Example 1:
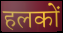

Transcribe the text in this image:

हलकों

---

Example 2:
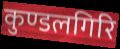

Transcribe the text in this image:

कुण्डलगिरि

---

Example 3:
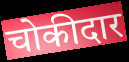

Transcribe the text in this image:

चोकीदार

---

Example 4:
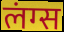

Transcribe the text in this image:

लंग्स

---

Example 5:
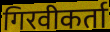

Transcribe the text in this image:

गिरवीकर्ता